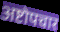
अष्टोपचार